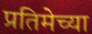
प्रतिमेच्या